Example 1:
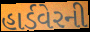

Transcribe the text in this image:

હાર્ડવેરની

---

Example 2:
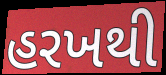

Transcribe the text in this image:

હરખથી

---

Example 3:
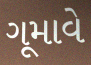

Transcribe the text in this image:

ગૂમાવે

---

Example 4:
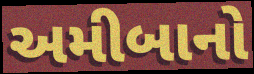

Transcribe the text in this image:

અમીબાનો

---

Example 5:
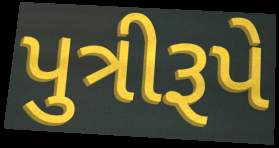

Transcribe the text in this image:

પુત્રીરૂપે